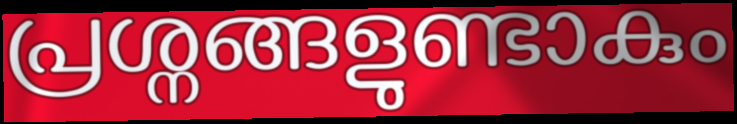
പ്രശ്നങ്ങളുണ്ടാകും